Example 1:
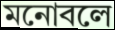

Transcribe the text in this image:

মনোবলে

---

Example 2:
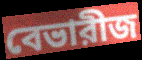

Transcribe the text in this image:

বেভারীজ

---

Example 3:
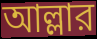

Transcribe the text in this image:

আল্লার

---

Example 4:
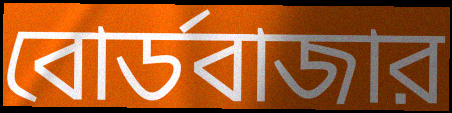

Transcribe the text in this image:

বোর্ডবাজার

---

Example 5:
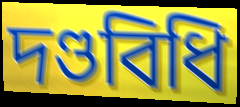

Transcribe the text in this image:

দণ্ডবিধি